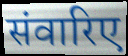
संवारिए